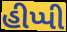
હીપ્પી